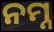
ନମ୍ନ